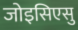
जोइसिएसु